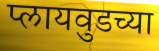
प्लायवुडच्या